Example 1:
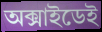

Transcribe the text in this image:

অক্সাইডেই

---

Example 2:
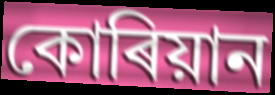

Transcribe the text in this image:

কোৰিয়ান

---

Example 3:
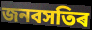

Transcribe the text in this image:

জনবসতিৰ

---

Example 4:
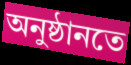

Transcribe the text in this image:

অনুষ্ঠানতে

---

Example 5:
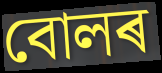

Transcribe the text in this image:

বোলৰ